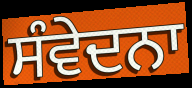
ਸੰਵੇਦਨਾ